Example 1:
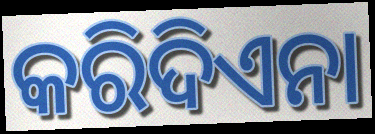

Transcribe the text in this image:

କରିଦିଏନା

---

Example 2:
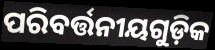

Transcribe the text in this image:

ପରିବର୍ତ୍ତନୀୟଗୁଡ଼ିକ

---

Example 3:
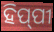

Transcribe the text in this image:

ହିପ୍‍ପୀ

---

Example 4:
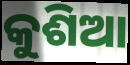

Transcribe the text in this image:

କୁଶିଆ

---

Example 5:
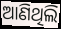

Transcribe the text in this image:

ଆଣିଥିଲି